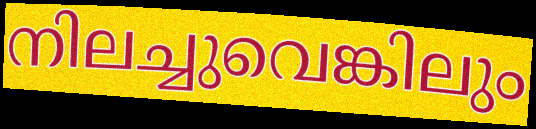
നിലച്ചുവെങ്കിലും